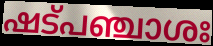
ഷട്പഞ്ചാശഃ